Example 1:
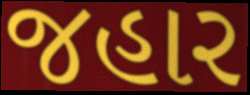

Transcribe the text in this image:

જહાર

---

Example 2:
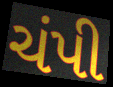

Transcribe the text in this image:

ચંપી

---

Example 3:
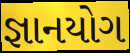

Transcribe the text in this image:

જ્ઞાનયોગ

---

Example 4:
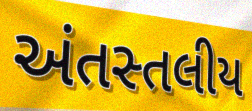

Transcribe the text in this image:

અંતસ્તલીય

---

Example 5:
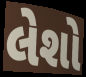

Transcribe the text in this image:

લેશો